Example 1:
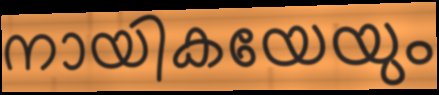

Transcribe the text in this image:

നായികയേയും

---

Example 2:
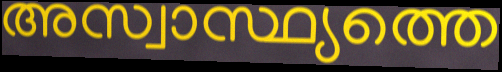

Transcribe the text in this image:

അസ്വാസ്ഥ്യത്തെ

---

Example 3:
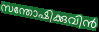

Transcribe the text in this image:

സന്തോഷിക്കുവിൻ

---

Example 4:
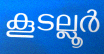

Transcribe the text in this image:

കൂടല്ലൂർ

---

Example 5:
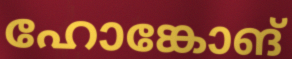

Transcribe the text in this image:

ഹോങ്കോങ്